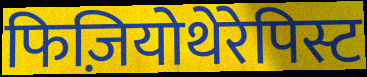
फिज़ियोथेरेपिस्ट